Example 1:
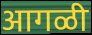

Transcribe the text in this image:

आगळी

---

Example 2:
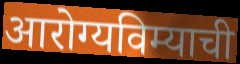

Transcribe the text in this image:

आरोग्यविम्याची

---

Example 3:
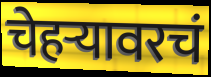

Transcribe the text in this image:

चेहऱ्यावरचं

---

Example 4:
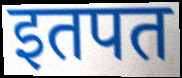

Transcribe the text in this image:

इतपत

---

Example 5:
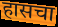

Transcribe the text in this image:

हासचा